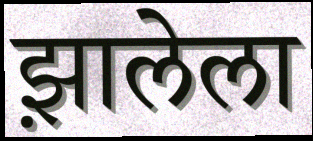
झ़ालेला